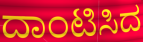
ದಾಂಟಿಸಿದ